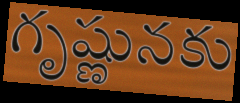
గృష్ణునకు